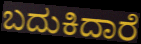
ಬದುಕಿದಾರೆ